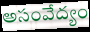
అసంవేద్యం